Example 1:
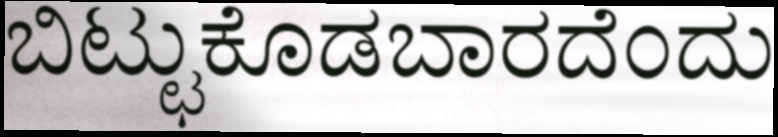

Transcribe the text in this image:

ಬಿಟ್ಟುಕೊಡಬಾರದೆಂದು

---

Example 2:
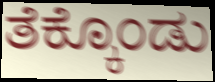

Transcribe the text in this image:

ತೆಕ್ಕೊಂಡು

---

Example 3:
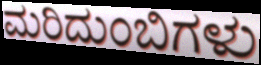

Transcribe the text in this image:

ಮರಿದುಂಬಿಗಳು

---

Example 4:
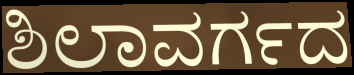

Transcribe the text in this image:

ಶಿಲಾವರ್ಗದ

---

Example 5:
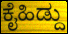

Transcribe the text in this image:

ಕೈಹಿಡ್ದು